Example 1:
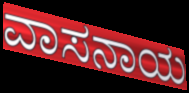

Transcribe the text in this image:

ವಾಸನಾಯ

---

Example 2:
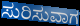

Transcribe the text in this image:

ಸುರಿಸುವಾಗ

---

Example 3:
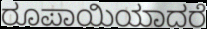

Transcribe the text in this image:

ರೂಪಾಯಿಯಾದರೆ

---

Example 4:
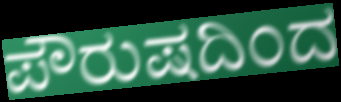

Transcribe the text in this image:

ಪೌರುಷದಿಂದ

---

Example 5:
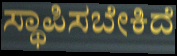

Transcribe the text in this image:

ಸ್ಥಾಪಿಸಬೇಕಿದೆ